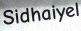
Sidhaiyel